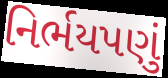
નિર્ભયપણું